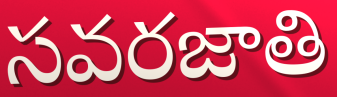
సవరజాతి